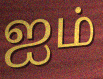
ஐம்